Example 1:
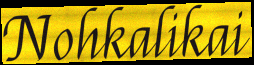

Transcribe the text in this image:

Nohkalikai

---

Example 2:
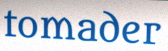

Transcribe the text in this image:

tomader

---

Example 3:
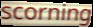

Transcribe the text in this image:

scorning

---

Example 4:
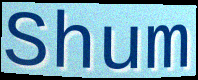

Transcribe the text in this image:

Shum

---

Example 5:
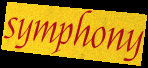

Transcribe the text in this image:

symphony